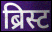
ब्रिस्ट